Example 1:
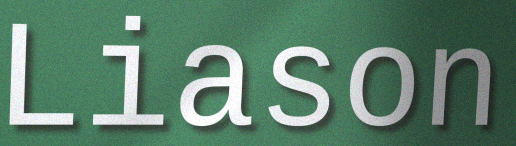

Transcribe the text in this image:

Liason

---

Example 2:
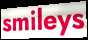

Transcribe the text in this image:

smileys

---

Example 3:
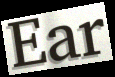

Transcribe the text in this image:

Ear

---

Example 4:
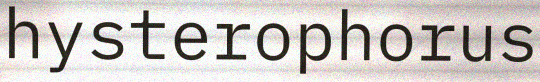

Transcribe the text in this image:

hysterophorus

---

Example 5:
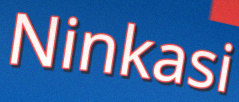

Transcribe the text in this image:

Ninkasi